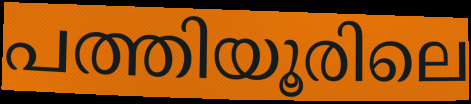
പത്തിയൂരിലെ